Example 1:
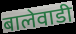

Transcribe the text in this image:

बालेवाडी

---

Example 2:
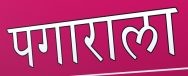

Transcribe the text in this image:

पगाराला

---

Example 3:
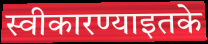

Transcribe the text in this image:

स्वीकारण्याइतके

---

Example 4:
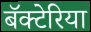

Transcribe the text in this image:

बॅक्टेरिया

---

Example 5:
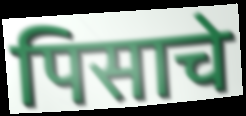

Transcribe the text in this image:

पिसाचे